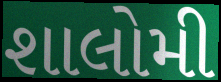
શાલોમી